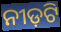
ନୀଡ଼ଟି